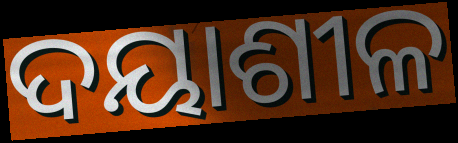
ଦୟାଶୀଳ